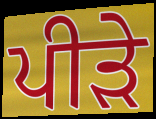
ਪੀੜੇ